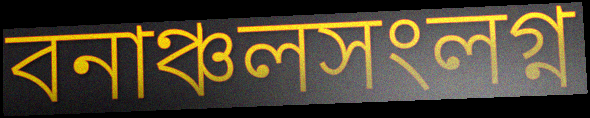
বনাঞ্চলসংলগ্ন